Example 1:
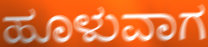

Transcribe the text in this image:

ಹೂಳುವಾಗ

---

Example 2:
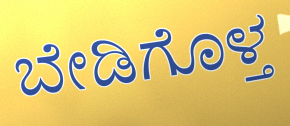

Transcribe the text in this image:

ಬೇಡಿಗೊಳ್ತ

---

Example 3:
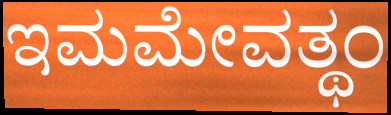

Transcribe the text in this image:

ಇಮಮೇವತ್ಥಂ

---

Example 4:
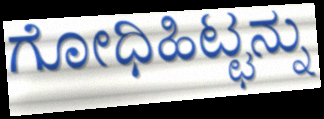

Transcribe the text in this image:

ಗೋಧಿಹಿಟ್ಟನ್ನು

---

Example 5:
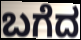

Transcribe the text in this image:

ಬಗೆದ